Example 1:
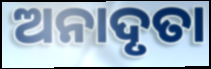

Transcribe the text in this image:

ଅନାଦୃତା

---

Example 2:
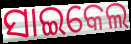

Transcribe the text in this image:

ସାଇକେଲ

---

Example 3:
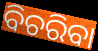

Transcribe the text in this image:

ବିଚରିବା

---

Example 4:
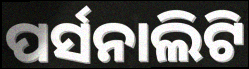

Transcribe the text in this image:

ପର୍ସନାଲିଟି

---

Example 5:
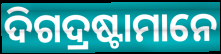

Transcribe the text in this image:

ଦିଗଦ୍ରଷ୍ଟାମାନେ